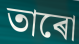
তাৰো